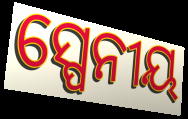
ସ୍ପେନୀୟ